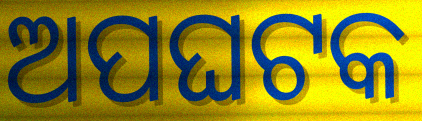
ଅପଘଟକ